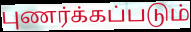
புணர்க்கப்படும்